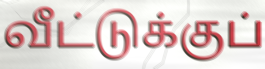
வீட்டுக்குப்